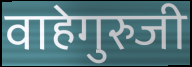
वाहेगुरुजी